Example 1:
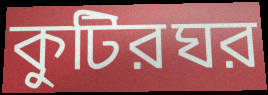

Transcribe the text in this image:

কুটিরঘর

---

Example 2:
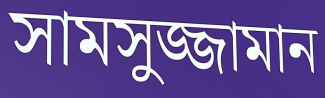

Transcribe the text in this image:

সামসুজ্জামান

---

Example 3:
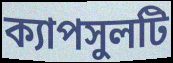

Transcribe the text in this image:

ক্যাপসুলটি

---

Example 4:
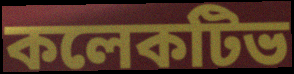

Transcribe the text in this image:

কলেকটিভ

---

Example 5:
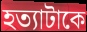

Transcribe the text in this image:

হত্যাটাকে